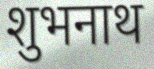
शुभनाथ